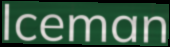
Iceman